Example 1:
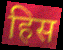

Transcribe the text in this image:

हिस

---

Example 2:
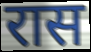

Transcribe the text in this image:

रास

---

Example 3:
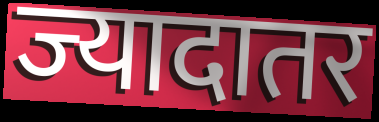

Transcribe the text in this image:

ज्‍यादातर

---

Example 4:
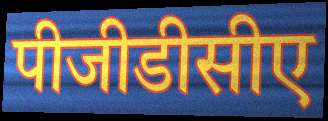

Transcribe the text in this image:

पीजीडीसीए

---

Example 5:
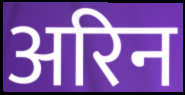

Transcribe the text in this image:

अरिन